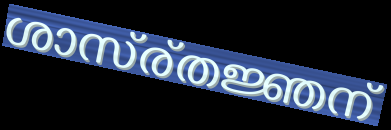
ശാസ്ര്തജ്ഞന്